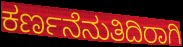
ಕರ್ಣನೆನುತಿದಿರಾಗಿ